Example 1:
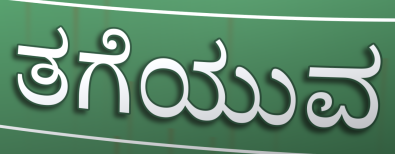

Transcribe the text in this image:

ತಗೆಯುವ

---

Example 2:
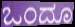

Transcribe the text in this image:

ಒಂದೂ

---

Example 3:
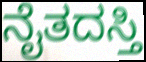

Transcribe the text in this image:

ನೈತದಸ್ತಿ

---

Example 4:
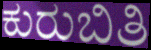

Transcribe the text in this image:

ಕುರುಬಿತಿ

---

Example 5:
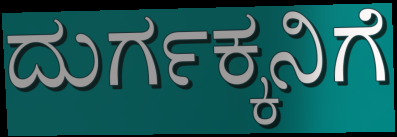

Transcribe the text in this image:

ದುರ್ಗಕ್ಕನಿಗೆ